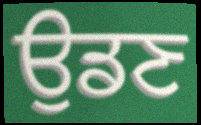
ਉਡਣ